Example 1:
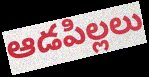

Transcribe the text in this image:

ఆడపిల్లలు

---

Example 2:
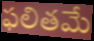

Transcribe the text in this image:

ఫలితమే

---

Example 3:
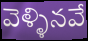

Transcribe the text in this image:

వెళ్ళినవే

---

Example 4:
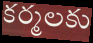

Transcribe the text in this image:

కర్మలకు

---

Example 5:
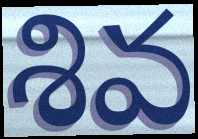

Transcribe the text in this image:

శివ